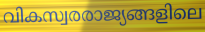
വികസ്വരരാജ്യങ്ങളിലെ